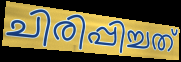
ചിരിപ്പിച്ചത്